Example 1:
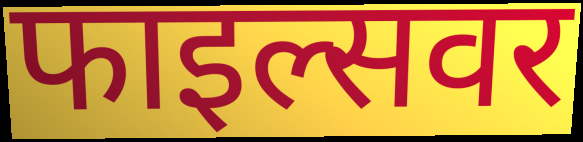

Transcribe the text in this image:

फाइल्सवर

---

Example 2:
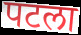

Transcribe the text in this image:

पटला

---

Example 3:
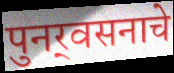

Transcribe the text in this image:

पुनर्वसनाचे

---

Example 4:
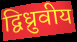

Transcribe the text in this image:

द्विध्रुवीय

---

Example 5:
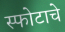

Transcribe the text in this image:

स्फोटाचे